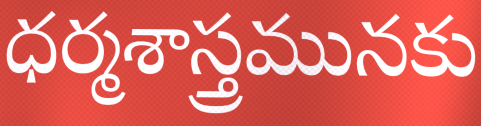
ధర్మశాస్త్రమునకు